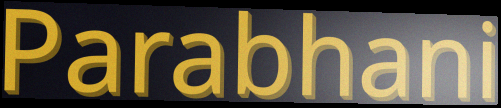
Parabhani